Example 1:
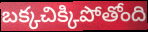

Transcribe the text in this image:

బక్కచిక్కిపోతోంది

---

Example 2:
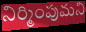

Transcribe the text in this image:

నిర్మింపుమని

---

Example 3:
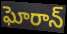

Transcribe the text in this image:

ఘోరాన్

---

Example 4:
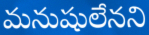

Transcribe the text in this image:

మనుషులేనని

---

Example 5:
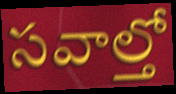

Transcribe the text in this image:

సవాల్తో